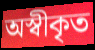
অস্বীকৃত